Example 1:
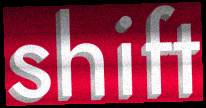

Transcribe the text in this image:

shift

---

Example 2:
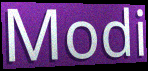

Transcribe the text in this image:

Modi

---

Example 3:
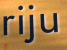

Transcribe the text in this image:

riju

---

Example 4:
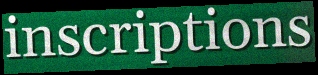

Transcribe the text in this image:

inscriptions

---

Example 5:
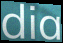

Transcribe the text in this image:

dia